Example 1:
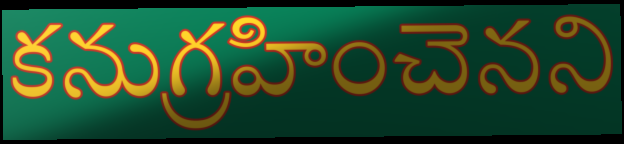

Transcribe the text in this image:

కనుగ్రహించెనని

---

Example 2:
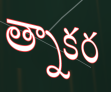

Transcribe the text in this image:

త్నాకర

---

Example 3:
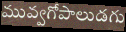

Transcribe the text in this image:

మువ్వగోపాలుడగు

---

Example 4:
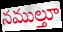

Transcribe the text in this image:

నముల్తూ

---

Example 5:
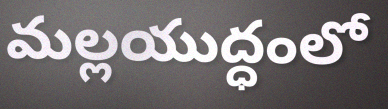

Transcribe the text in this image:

మల్లయుద్ధంలో